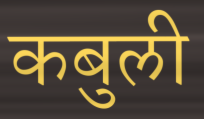
कबुली